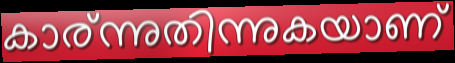
കാര്ന്നുതിന്നുകയാണ്